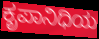
ಕೃಪಾನಿಧಿಯ